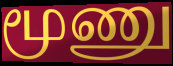
மூணு